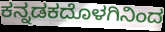
ಕನ್ನಡಕದೊಳಗಿನಿಂದ